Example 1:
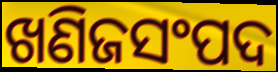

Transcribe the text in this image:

ଖଣିଜସଂପଦ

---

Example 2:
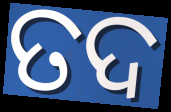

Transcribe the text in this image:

ତଦ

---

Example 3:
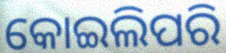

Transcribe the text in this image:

କୋଇଲିପରି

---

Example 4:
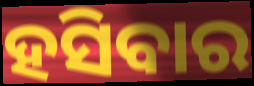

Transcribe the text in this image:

ହସିବାର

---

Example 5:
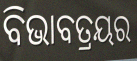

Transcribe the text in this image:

ବିଭାବତ୍ରୟର